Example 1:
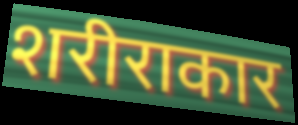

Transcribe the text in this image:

शरीराकार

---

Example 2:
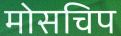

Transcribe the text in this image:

मोसचिप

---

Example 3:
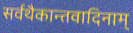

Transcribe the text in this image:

सर्वथैकान्तवादिनाम्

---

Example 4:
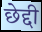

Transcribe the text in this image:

छेद्दी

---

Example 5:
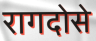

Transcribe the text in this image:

रागदोसे